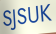
SJSUK